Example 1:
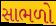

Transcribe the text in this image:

સાભળો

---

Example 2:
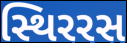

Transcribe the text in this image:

સ્થિરરસ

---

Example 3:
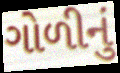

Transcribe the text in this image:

ગોળીનું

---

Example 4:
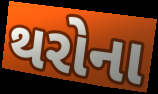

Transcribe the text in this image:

થરોના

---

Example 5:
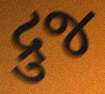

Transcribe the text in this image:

દ્રુજ